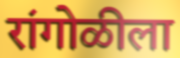
रांगोळीला